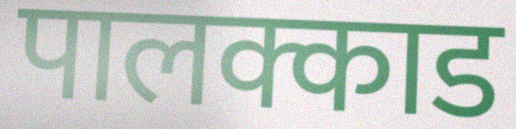
पालक्काड